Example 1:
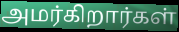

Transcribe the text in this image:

அமர்கிறார்கள்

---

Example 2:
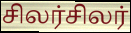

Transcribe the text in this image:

சிலர்சிலர்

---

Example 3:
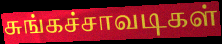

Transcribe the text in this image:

சுங்கச்சாவடிகள்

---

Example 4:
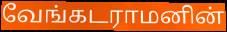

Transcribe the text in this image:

வேங்கடராமனின்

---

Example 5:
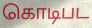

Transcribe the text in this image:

கொடிபட